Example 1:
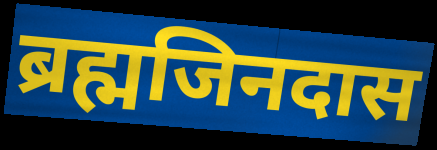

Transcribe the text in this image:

ब्रह्मजिनदास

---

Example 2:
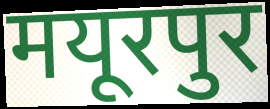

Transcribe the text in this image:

मयूरपुर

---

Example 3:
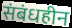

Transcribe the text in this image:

संबंधहीन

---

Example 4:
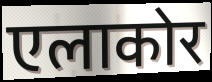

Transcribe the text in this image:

एलाकोर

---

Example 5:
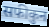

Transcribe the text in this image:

सफीकुन